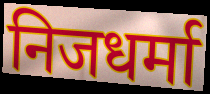
निजधर्मा